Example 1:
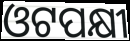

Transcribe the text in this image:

ଓଟପକ୍ଷୀ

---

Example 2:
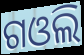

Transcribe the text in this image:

ଗଓଲି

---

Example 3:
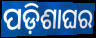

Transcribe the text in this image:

ପଡ଼ିଶାଘର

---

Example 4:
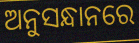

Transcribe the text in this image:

ଅନୁସନ୍ଧାନରେ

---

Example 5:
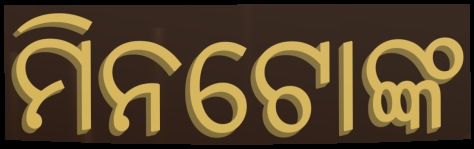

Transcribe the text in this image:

ମିନଟୋଙ୍କ